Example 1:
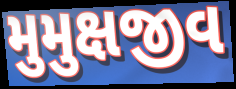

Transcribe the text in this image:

મુમુક્ષજીવ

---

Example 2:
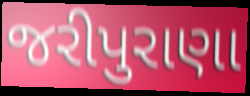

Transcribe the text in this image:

જરીપુરાણા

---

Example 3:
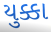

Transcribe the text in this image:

યુક્કા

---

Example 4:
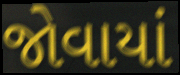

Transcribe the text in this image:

જોવાયાં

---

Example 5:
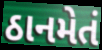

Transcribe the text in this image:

ઠાનમેતં